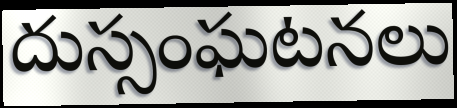
దుస్సంఘటనలు